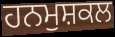
ਹਨਮੁਸ਼ਕਲ